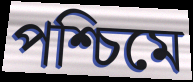
পশ্চিমে